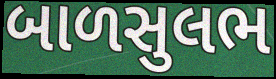
બાળસુલભ